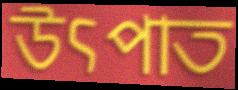
উৎপাত